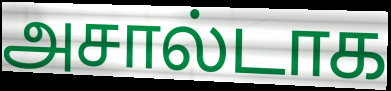
அசால்டாக